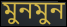
মুনমুন